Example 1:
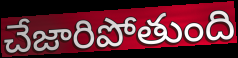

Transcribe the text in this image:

చేజారిపోతుంది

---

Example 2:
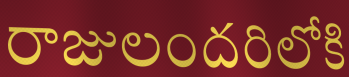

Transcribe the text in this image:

రాజులందరిలోకి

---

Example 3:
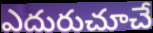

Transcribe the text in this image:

ఎదురుచూచే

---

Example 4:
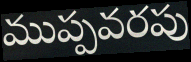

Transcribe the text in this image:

ముప్పవరపు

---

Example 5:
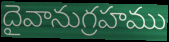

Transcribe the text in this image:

దైవానుగ్రహము